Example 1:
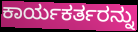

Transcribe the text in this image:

ಕಾರ್ಯಕರ್ತರನ್ನು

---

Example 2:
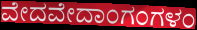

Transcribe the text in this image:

ವೇದವೇದಾಂಗಂಗಳಂ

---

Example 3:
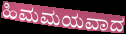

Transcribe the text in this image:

ಹಿಮಮಯವಾದ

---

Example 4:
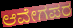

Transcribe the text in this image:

ಆವೇಗಪರ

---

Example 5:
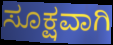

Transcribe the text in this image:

ಸೂಕ್ಷವಾಗಿ